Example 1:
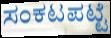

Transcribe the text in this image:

ಸಂಕಟಪಟ್ಟೆ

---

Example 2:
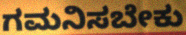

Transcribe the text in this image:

ಗಮನಿಸಬೇಕು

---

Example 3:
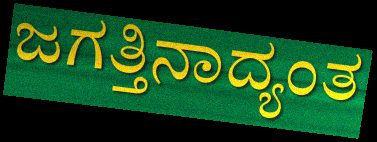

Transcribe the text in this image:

ಜಗತ್ತಿನಾದ್ಯಂತ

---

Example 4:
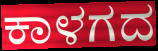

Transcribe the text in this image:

ಕಾಳಗದ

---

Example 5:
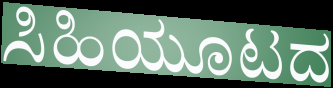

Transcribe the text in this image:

ಸಿಹಿಯೂಟದ